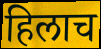
हिलाच